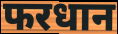
फरधान